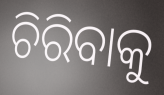
ଚିରିବାକୁ